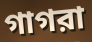
গাগরা